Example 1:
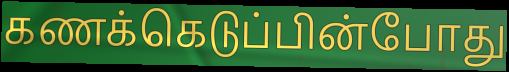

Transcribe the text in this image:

கணக்கெடுப்பின்போது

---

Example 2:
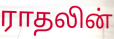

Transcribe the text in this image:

ராதலின்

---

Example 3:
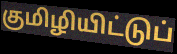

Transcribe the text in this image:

குமிழியிட்டுப்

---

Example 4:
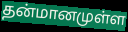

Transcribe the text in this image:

தன்மானமுள்ள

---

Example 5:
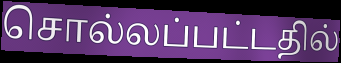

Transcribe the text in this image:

சொல்லப்பட்டதில்